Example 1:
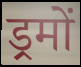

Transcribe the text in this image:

ड्रमों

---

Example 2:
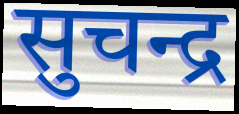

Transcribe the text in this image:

सुचन्द्र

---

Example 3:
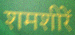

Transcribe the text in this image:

शमशीरें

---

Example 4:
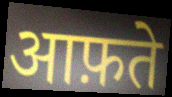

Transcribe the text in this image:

आफ़ते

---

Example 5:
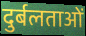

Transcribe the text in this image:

दुर्बलताओं